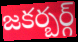
జకర్బర్గ్